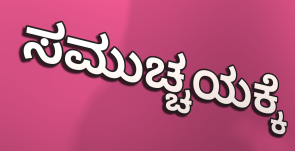
ಸಮುಚ್ಚಯಕ್ಕೆ